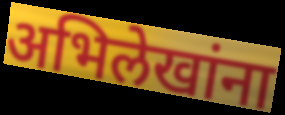
अभिलेखांना